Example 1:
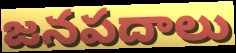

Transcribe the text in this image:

జనపదాలు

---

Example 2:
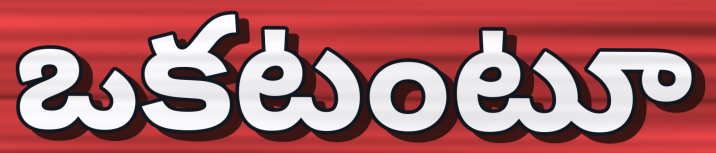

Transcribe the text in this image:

ఒకటంటూ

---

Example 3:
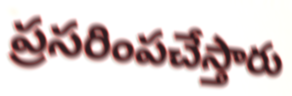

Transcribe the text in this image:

ప్రసరింపచేస్తారు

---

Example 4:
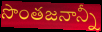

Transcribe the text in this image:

సొంతజనాన్నీ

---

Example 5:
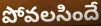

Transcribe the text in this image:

పోవలసిందే